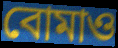
বোমাও